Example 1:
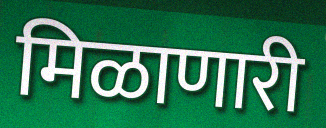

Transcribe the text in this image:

मिळाणारी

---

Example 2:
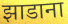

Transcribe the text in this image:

झाडाना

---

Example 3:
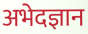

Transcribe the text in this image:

अभेदज्ञान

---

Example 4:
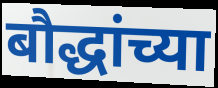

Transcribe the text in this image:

बौद्धांच्या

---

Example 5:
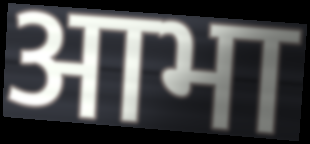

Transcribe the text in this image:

आभा